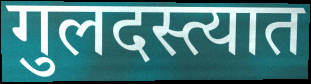
गुलदस्त्यात